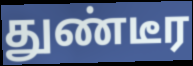
துண்டீர